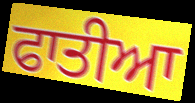
ਫਾਤੀਆ